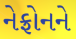
નેફ્રોનને